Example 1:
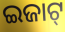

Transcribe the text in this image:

ଇଜାଟ୍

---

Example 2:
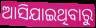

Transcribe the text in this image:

ଆସିଯାଇଥିବାରୁ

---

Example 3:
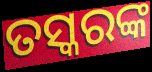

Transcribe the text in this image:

ତସ୍କରଙ୍କ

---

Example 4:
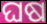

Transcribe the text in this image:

ଘଷ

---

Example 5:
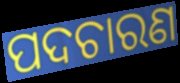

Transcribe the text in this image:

ପଦଚାରଣ